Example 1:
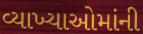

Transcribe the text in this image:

વ્યાખ્યાઓમાંની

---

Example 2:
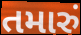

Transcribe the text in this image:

તમારું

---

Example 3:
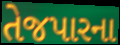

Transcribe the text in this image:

તેજપારના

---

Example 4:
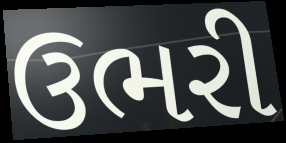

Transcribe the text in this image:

ઉભરી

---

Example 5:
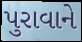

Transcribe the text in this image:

પુરાવાને